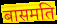
बासमति